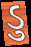
ડુ